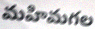
మహిమగల